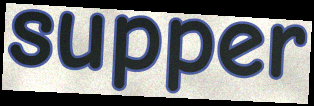
supper